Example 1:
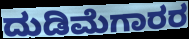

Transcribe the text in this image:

ದುಡಿಮೆಗಾರರ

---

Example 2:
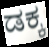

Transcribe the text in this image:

ಡಕ್ಕ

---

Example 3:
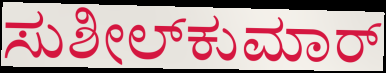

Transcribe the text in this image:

ಸುಶೀಲ್‌ಕುಮಾರ್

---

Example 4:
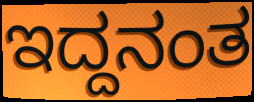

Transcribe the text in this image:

ಇದ್ದನಂತ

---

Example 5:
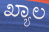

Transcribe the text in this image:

ಖ್ಯಾಲ